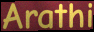
Arathi